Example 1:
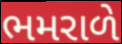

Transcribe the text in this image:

ભમરાળે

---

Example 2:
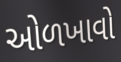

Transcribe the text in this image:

ઓળખાવો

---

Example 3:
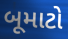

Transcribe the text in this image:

બૂમાટો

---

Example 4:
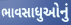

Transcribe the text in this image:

ભાવસાધુઓનું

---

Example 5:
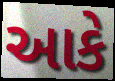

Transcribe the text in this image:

આકે